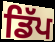
ਡਿੱਪ